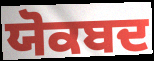
ਯੋਕਬਦ